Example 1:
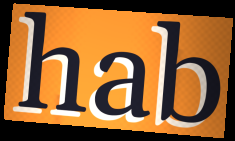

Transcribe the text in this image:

hab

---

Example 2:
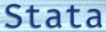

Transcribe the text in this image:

Stata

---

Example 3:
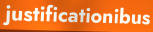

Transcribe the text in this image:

justificationibus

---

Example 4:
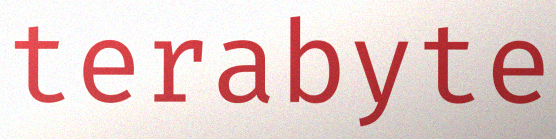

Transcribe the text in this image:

terabyte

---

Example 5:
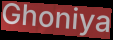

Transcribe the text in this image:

Ghoniya